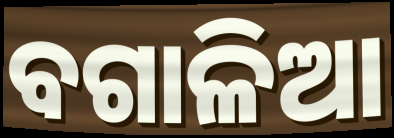
ବଗାଳିଆ